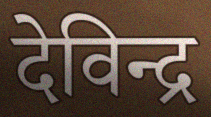
देविन्द्र